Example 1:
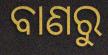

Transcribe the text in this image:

ବାଣରୁ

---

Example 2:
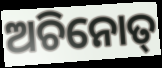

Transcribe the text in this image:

ଅଚିନୋତ୍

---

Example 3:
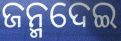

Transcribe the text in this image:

ଜନ୍ମଦେଇ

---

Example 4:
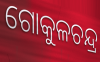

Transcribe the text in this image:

ଗୋକୁଳଚନ୍ଦ୍ର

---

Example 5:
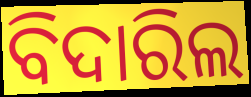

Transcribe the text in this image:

ବିଦାରିଲ